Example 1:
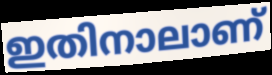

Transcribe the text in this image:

ഇതിനാലാണ്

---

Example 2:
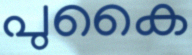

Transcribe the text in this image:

പുകൈ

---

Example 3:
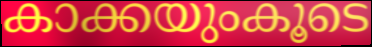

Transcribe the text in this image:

കാക്കയുംകൂടെ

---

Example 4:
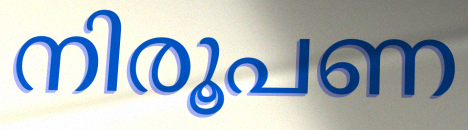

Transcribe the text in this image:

നിരൂപണ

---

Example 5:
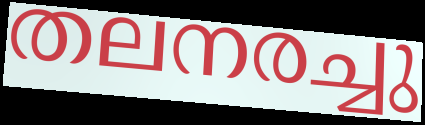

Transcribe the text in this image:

തലനരച്ചു